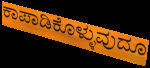
ಕಾಪಾಡಿಕೊಳ್ಳುವುದೂ